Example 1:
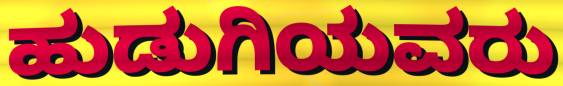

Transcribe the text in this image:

ಹುಡುಗಿಯವರು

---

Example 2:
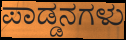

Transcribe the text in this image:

ಪಾಡ್ಡನಗಳು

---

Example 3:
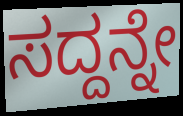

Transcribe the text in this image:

ಸದ್ದನ್ನೇ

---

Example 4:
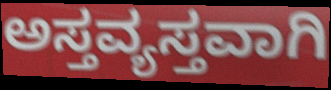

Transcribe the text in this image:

ಅಸ್ತವ್ಯಸ್ತವಾಗಿ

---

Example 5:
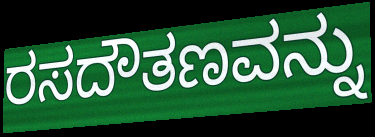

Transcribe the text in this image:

ರಸದೌತಣವನ್ನು